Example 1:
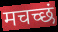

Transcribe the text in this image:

मचच्छं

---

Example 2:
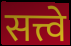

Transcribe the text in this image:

सत्त्वे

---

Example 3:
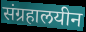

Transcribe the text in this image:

संग्रहालयीन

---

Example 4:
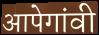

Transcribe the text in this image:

आपेगांवी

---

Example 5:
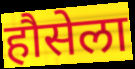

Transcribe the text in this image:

हौसेला